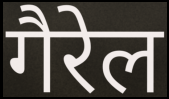
गैरेल